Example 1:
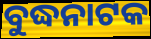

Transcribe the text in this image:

ବୁଦ୍ଧନାଟକ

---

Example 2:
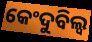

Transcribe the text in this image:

କେଂଦୁବିଲ୍ୱ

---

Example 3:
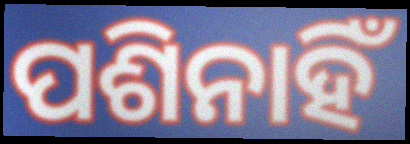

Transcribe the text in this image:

ପଶିନାହିଁ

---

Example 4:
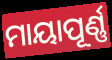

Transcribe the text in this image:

ମାୟାପୂର୍ଣ୍ଣ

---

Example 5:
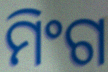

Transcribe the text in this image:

ମିଂଗ